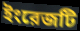
ইংরেজটি